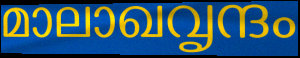
മാലാഖവൃന്ദം